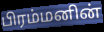
பிரம்மனின்